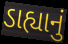
ડાહ્યાનું